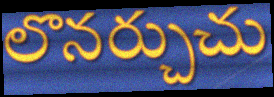
లొనర్చుచు